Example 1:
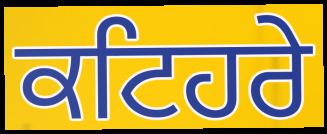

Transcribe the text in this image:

ਕਟਿਹਰੇ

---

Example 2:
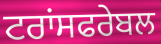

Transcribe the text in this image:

ਟਰਾਂਸਫਰੇਬਲ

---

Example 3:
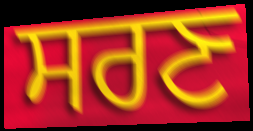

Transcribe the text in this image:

ਸਰਣ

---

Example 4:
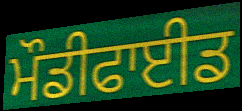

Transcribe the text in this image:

ਮੌਡੀਫਾਈਡ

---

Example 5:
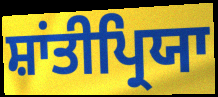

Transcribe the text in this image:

ਸ਼ਾਂਤੀਪ੍ਰਿਯਾ